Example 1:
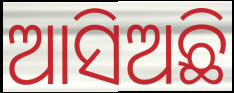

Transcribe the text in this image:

ଆସିଅଛି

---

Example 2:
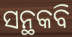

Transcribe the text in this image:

ସନ୍ଥକବି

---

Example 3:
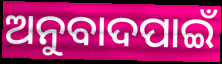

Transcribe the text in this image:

ଅନୁବାଦପାଇଁ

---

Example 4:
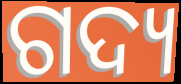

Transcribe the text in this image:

ଗଦ୍ୟ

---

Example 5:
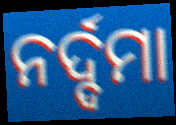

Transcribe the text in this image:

ନର୍ଦ୍ଦମା